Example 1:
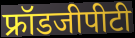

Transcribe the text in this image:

फ्रॉडजीपीटी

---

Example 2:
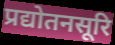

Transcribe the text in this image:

प्रद्योतनसूरि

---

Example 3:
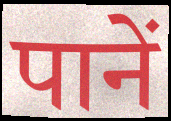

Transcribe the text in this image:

पानें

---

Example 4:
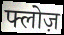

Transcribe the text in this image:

फ्लोज़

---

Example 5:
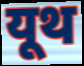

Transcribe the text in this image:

यूथ